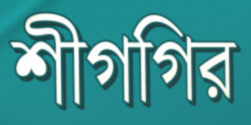
শীগগির